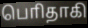
பெரிதாகி